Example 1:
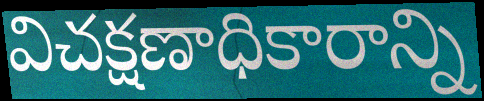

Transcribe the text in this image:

విచక్షణాధికారాన్ని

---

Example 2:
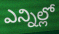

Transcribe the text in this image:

ఎన్నిల్లో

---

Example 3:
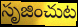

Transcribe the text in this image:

సృజించుట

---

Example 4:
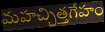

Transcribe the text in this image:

మహచ్చిత్తగేహం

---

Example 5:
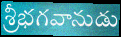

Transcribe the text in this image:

శ్రీభగవానుడు